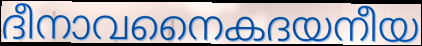
ദീനാവനൈകദയനീയ